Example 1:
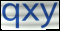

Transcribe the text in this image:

qxy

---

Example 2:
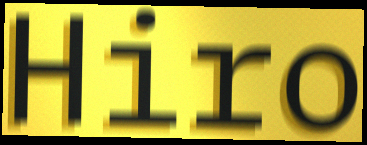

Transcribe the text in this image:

Hiro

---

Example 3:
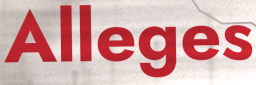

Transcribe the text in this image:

Alleges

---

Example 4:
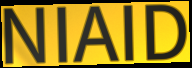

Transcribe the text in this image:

NIAID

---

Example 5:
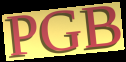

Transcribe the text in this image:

PGB